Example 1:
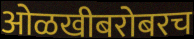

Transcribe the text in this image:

ओळखीबरोबरच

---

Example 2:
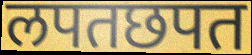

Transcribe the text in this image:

लपतछपत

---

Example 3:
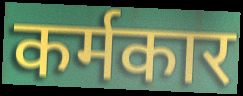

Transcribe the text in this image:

कर्मकार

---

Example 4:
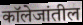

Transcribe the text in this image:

कॉलेजांतील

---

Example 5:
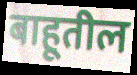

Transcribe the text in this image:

बाहूतील